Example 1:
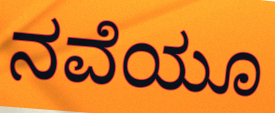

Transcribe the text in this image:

ನವೆಯೂ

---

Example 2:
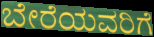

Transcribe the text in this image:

ಬೇರೆಯವರಿಗೆ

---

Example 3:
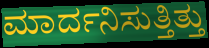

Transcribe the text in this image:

ಮಾರ್ದನಿಸುತ್ತಿತ್ತು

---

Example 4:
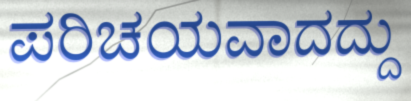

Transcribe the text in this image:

ಪರಿಚಯವಾದದ್ದು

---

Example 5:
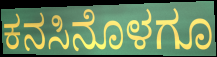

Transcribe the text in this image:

ಕನಸಿನೊಳಗೂ